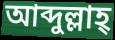
আব্দুল্লাহ্